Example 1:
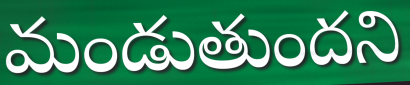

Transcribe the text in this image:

మండుతుందని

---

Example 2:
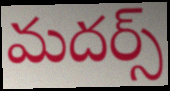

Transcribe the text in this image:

మదర్స్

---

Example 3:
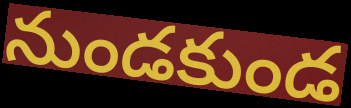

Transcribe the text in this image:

నుండకుండ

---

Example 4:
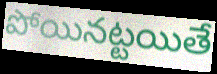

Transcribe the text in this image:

పోయినట్టయితే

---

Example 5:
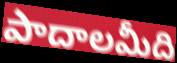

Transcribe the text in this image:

పాదాలమీది